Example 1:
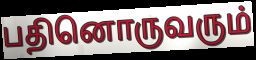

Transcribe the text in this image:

பதினொருவரும்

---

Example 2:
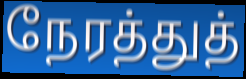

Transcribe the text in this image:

நேரத்துத்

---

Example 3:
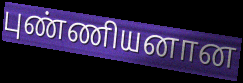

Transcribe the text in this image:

புண்ணியனான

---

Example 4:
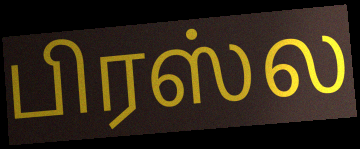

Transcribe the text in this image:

பிரஸ்ல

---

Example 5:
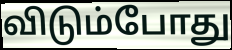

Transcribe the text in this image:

விடும்போது